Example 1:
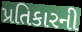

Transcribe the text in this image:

પ્રતિકારની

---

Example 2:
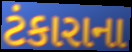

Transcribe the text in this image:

ટંકારાના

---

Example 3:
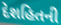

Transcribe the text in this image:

દેશહિતની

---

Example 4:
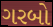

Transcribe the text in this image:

ગરબો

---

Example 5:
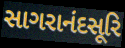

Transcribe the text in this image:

સાગરાનંદસૂરિ